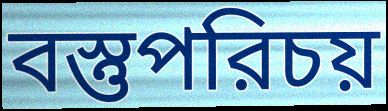
বস্তুপরিচয়